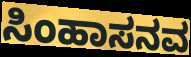
ಸಿಂಹಾಸನವ